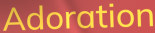
Adoration